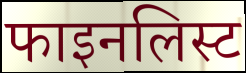
फाइनलिस्ट